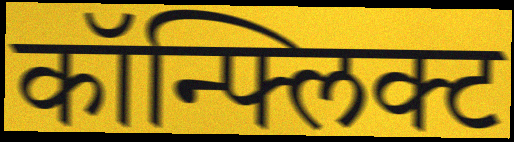
कॉन्फ्लिक्ट